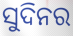
ସୁଦିନର